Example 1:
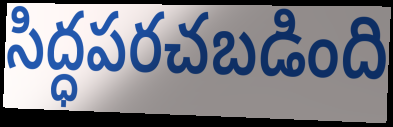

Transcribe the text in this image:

సిద్ధపరచబడింది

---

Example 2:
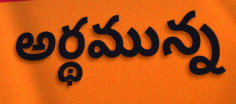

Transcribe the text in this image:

అర్థమున్న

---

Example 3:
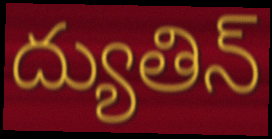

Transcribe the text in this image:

ద్యుతిన్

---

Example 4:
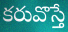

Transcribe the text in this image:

కరువొస్తే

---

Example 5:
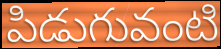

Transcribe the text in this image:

పిడుగువంటి